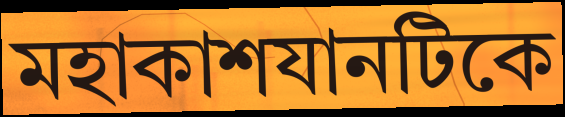
মহাকাশযানটিকে